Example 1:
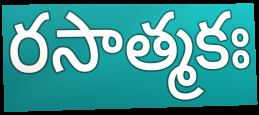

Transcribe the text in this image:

రసాత్మకః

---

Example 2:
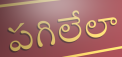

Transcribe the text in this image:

పగిలేలా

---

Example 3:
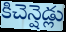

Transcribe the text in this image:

కిచెన్షెడ్లు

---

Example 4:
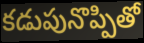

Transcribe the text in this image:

కడుపునొప్పితో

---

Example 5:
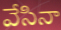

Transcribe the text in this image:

వేసినా